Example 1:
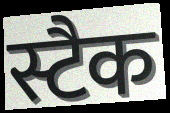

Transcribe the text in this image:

स्टैक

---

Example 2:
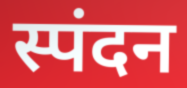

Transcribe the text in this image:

स्पंदन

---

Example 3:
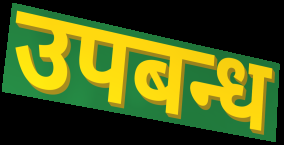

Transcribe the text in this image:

उपबन्ध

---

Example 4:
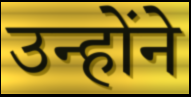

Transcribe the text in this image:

उन्होंने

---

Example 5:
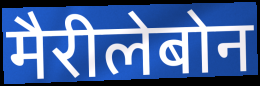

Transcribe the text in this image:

मैरीलेबोन